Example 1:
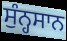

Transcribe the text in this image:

ਸੁੰਨ੍ਹਸਾਨ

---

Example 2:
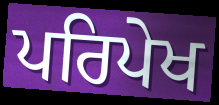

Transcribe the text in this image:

ਪਰਿਪੇਖ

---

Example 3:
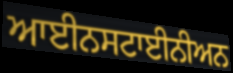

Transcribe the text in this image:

ਆਈਨਸਟਾਈਨੀਅਨ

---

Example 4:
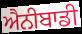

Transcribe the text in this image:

ਐਨੀਬਾਡੀ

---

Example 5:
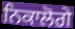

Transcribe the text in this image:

ਨਿਕਾਲੋਗੇ